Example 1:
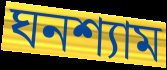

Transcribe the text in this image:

ঘনশ্যাম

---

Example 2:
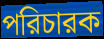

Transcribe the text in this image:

পরিচারক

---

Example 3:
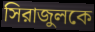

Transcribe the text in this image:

সিরাজুলকে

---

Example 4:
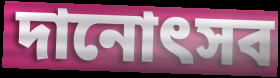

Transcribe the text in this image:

দানোৎসব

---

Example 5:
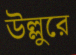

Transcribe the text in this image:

উল্লুরে